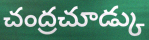
చంద్రచూడ్కు